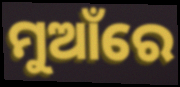
ମୁଆଁରେ